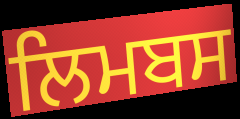
ਲਿਮਬਸ